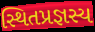
સ્થિતપ્રજ્ઞસ્ય